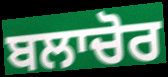
ਬਲਾਚੋਰ